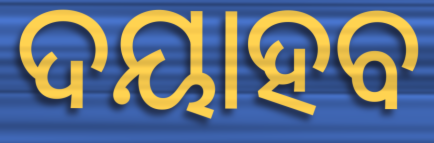
ଦୟାହବ